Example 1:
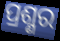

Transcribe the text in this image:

ପ୍ରଶ୍ଣର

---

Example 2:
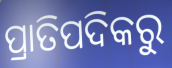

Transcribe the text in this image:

ପ୍ରାତିପଦିକରୁ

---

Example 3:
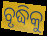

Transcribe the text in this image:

ବୃଦ୍ଧିକୁ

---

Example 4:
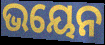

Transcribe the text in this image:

ଭୟେନ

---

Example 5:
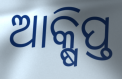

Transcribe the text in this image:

ଆକ୍ଷିପ୍ତ